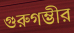
গুরুগম্ভীর